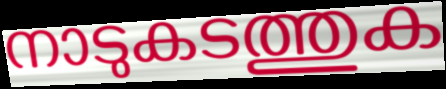
നാടുകടത്തുക